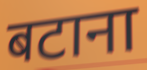
बटाना